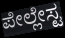
ಪೇಲ್ಲೇಸ್ಟ